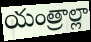
యంత్రాల్లా